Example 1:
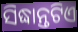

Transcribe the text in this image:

ସିଦ୍ଧାନ୍ତଟିଏ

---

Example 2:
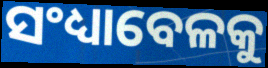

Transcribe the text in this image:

ସଂଧ୍ୟାବେଳକୁ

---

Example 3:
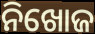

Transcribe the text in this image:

ନିଖୋଜ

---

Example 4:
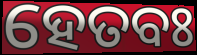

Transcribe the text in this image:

ହେତବଃ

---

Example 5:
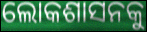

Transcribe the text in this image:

ଲୋକଶାସନକୁ